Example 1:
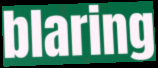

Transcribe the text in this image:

blaring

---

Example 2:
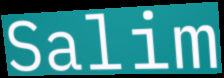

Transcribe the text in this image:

Salim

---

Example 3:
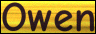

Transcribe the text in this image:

Owen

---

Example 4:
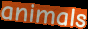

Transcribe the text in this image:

animals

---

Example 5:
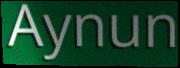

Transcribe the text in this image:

Aynun